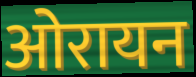
ओरायन